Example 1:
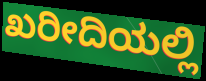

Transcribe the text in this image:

ಖರೀದಿಯಲ್ಲಿ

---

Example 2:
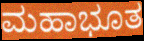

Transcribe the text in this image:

ಮಹಾಭೂತ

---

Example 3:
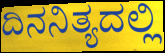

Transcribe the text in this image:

ದಿನನಿತ್ಯದಲ್ಲಿ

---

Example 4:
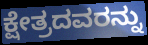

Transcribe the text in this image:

ಕ್ಷೇತ್ರದವರನ್ನು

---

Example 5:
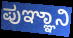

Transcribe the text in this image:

ಪುಞ್ಞಾನಿ